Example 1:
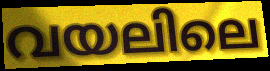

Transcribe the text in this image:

വയലിലെ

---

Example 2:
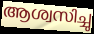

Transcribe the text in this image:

ആശ്വസിച്ചു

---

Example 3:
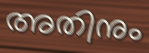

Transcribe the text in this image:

അതിനും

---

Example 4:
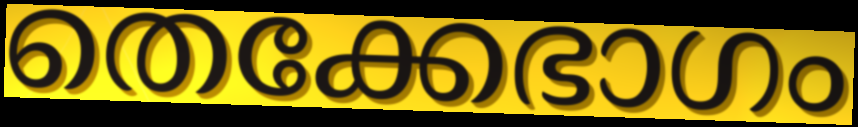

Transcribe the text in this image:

തെക്കേഭാഗം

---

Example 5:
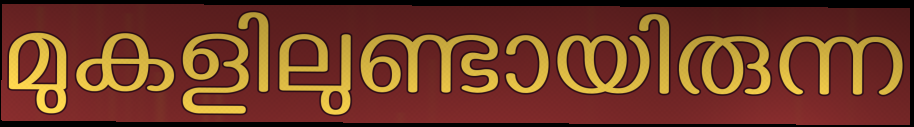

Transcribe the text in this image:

മുകളിലുണ്ടായിരുന്ന